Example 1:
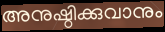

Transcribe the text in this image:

അനുഷ്ഠിക്കുവാനും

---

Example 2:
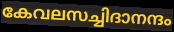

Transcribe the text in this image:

കേവലസച്ചിദാനന്ദം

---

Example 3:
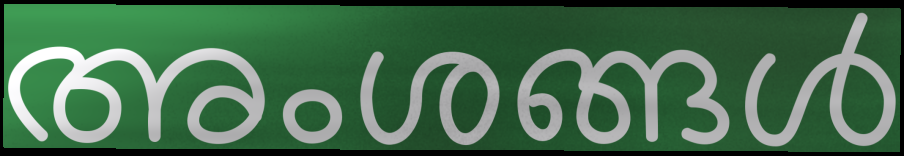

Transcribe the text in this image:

അംശങ്ങൾ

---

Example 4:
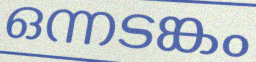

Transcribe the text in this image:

ഒന്നടങ്കം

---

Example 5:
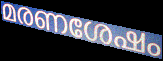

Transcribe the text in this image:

മരണശേഷം